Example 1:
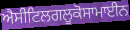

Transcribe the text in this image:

ਐਸੀਟਿਲਗਲੂਕੋਸਾਮਾਈਨ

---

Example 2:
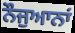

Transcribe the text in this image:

ਨੌਜੁਆਨਾਂ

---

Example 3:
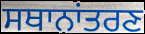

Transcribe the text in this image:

ਸਥਾਨਾਂਤਰਣ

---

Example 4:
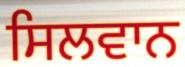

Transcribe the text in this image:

ਸਿਲਵਾਨ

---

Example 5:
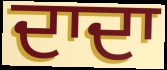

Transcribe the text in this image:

ਦਾਦਾ